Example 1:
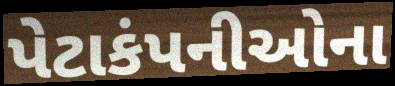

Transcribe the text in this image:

પેટાકંપનીઓના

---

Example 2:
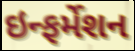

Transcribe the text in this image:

ઇન્ફર્મેશન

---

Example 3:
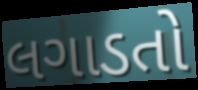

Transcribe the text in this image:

લગાડતો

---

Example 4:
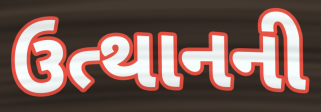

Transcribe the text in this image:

ઉત્થાનની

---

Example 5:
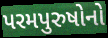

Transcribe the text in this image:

પરમપુરુષોનો